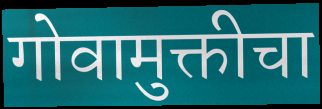
गोवामुक्तीचा